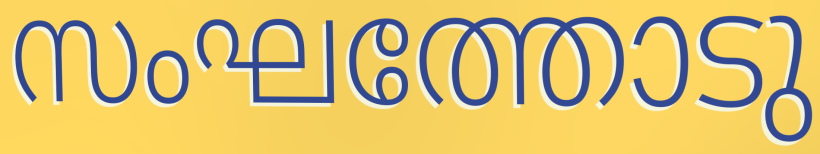
സംഘത്തോടു